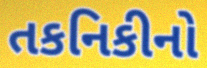
તકનિકીનો